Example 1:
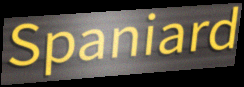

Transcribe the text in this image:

Spaniard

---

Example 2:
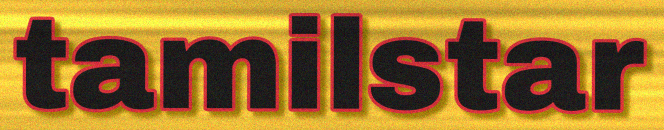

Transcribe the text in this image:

tamilstar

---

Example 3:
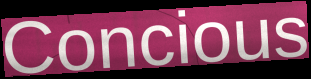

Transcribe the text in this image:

Concious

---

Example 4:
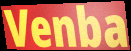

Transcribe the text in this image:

Venba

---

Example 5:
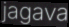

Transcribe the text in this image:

jagava